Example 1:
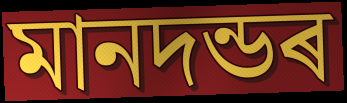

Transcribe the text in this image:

মানদন্ডৰ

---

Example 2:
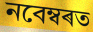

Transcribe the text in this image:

নবেম্বৰত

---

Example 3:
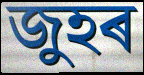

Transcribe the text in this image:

জুহৰ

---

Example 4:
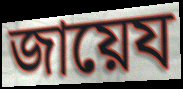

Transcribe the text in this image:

জায়েয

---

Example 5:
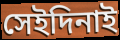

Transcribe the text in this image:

সেইদিনাই